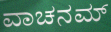
ವಾಚನಮ್